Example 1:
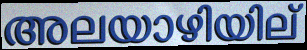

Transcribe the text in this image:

അലയാഴിയില്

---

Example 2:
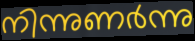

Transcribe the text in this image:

നിന്നുണർന്നു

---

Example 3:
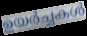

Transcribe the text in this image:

ഉയർച്ചകൾ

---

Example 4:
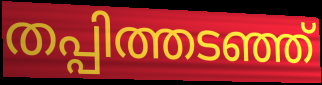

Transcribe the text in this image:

തപ്പിത്തടഞ്ഞ്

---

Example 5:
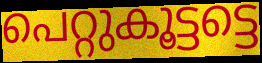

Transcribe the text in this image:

പെറ്റുകൂട്ടട്ടെ